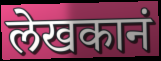
लेखकानं